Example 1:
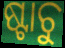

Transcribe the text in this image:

ଷ୍ଟାଚୁ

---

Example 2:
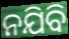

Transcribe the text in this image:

ନଯିବି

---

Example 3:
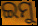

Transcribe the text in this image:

ଇମୁ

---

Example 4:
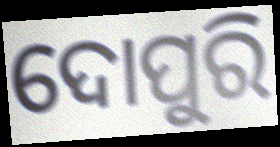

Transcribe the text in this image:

ଦୋପୁରି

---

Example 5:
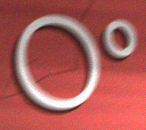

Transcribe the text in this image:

ଠଂ